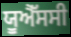
ਯੂਐੱਸਸੀ